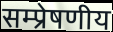
सम्प्रेषणीय